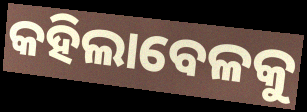
କହିଲାବେଳକୁ